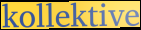
kollektive